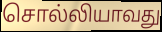
சொல்லியாவது